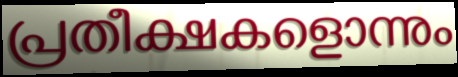
പ്രതീക്ഷകളൊന്നും